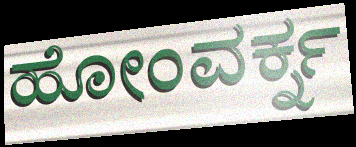
ಹೋಂವರ್ಕ್ನ